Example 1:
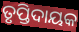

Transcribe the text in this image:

ତୃପ୍ତିଦାୟକ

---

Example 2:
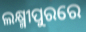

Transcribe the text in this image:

ଲକ୍ଷ୍ମୀପୁରରେ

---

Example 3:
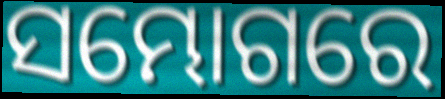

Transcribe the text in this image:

ସମ୍ଭୋଗରେ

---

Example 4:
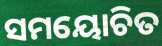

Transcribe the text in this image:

ସମୟୋଚିତ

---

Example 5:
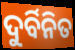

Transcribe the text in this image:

ଦୁର୍ବିନିତ